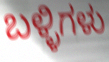
ಬಳ್ಳಿಗಳು